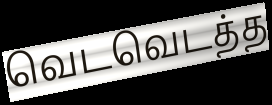
வெடவெடத்த